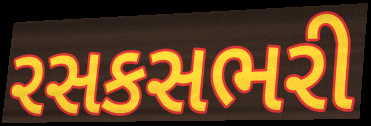
રસકસભરી